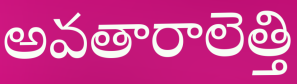
అవతారాలెత్తి